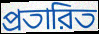
প্রতারিত